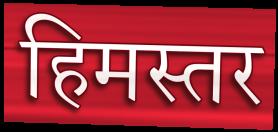
हिमस्तर